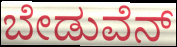
ಬೇಡುವೆನ್